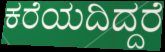
ಕರೆಯದಿದ್ದರೆ